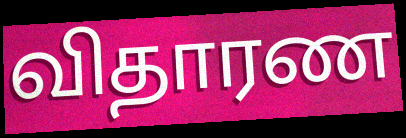
விதாரண